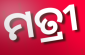
ମତ୍ରୀ